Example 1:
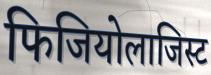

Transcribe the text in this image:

फिजियोलाजिस्ट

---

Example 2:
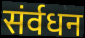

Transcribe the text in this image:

संर्वधन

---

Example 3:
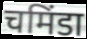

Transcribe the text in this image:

चमिंडा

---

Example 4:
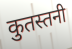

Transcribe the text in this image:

कुतस्तनी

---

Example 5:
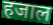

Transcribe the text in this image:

हजाल